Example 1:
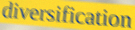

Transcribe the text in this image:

diversification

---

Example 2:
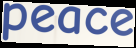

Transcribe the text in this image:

peace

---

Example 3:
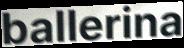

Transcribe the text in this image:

ballerina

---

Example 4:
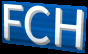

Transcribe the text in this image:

FCH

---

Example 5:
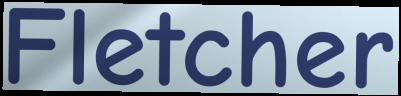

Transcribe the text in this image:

Fletcher